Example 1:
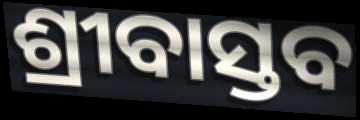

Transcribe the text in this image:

ଶ୍ରୀବାସ୍ତବ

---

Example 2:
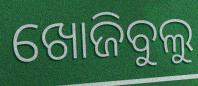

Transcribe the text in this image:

ଖୋଜିବୁଲୁ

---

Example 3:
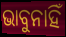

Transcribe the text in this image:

ଭାବୁନାହିଁ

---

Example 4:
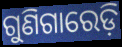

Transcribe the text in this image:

ଗୁଣିଗାରେଡ଼ି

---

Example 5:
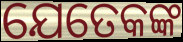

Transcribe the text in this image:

ଯେତେକଙ୍କ